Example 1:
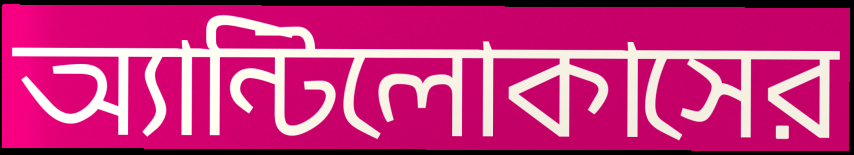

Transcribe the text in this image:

অ্যান্টিলোকাসের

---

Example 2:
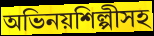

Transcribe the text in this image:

অভিনয়শিল্পীসহ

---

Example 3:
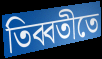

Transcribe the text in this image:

তিব্বতীতে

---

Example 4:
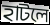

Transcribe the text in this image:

হাটলে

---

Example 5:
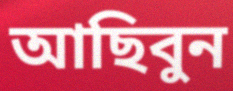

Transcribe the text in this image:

আছিবুন